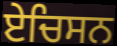
ਏਚਿਸਨ